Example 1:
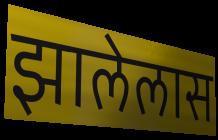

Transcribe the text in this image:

झालेलास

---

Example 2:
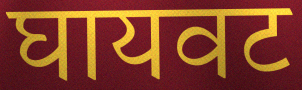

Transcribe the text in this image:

घायवट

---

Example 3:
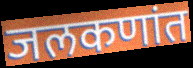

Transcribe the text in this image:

जलकणांत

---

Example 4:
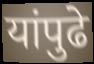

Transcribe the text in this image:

यांपुढे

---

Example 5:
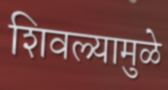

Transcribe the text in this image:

शिवल्यामुळे